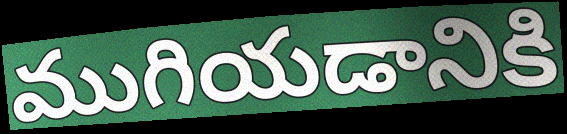
ముగియడానికి